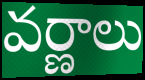
వర్ణాలు